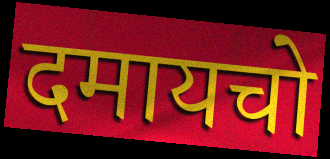
दमायचो